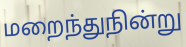
மறைந்துநின்று